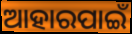
ଆହାରପାଇଁ